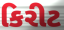
કિરીટ